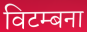
विटम्बना